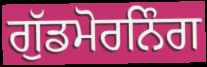
ਗੁੱਡਮੋਰਨਿੰਗ